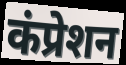
कंप्रेशन